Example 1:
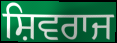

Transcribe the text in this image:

ਸ਼ਿਵਰਾਜ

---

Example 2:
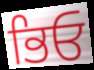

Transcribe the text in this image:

ਭਿਓ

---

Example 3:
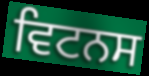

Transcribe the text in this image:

ਵਿਟਨਸ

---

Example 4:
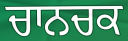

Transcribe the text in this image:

ਚਾਨਚਕ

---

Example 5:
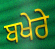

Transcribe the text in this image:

ਬਖੇਰੇ